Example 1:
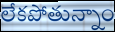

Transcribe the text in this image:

లేకపోతున్నాం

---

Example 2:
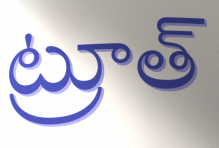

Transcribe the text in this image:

ట్రూత్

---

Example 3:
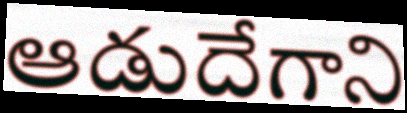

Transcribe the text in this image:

ఆడుదేగాని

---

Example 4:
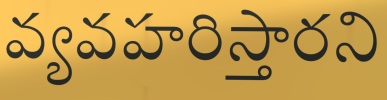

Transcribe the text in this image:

వ్యవహరిస్తారని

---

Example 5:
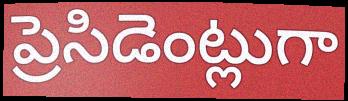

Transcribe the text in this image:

ప్రెసిడెంట్లుగా